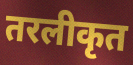
तरलीकृत